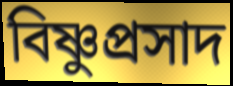
বিষ্ণুপ্রসাদ